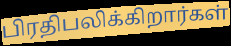
பிரதிபலிக்கிறார்கள்